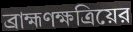
ব্রাহ্মণক্ষত্রিয়ের